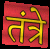
तंत्रे